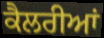
ਕੈਲਰੀਆਂ